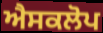
ਐਸਕਲੋਪ